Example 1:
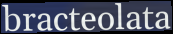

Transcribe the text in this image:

bracteolata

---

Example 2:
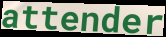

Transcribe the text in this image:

attender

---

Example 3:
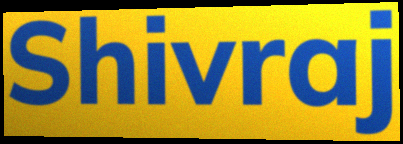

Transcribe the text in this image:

Shivraj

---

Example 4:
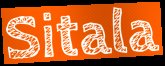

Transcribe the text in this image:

Sitala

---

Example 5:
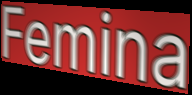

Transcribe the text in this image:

Femina